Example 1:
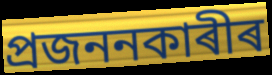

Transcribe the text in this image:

প্ৰজননকাৰীৰ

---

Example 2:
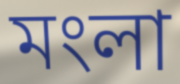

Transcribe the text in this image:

মংলা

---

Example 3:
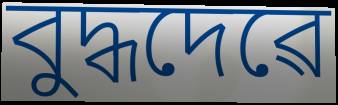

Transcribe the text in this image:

বুদ্ধদেৱে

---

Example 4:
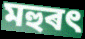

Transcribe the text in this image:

মহুৰৎ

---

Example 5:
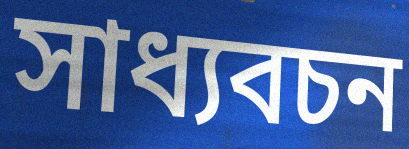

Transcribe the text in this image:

সাধ্যবচন